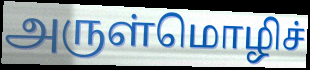
அருள்மொழிச்